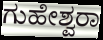
ಗುಹೇಶ್ವರಾ